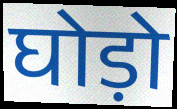
घोड़ो